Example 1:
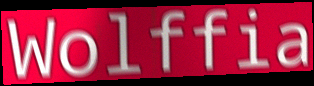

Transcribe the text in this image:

Wolffia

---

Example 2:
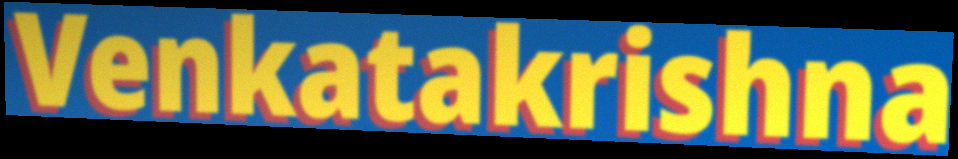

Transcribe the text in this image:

Venkatakrishna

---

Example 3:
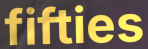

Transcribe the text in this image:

fifties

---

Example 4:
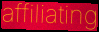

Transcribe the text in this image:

affiliating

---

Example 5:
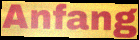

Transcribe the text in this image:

Anfang